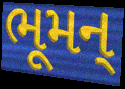
ભૂમન્